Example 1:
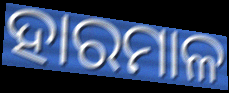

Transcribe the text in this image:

ହାରମାଳ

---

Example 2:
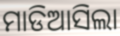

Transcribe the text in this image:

ମାଡିଆସିଲା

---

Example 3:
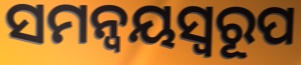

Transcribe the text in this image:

ସମନ୍ୱୟସ୍ୱରୂପ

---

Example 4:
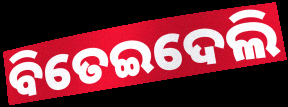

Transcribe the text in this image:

ବିତେଇଦେଲି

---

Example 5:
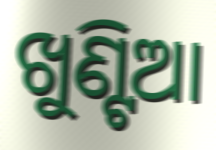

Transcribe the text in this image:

ଖୁଣ୍ଟିଆ